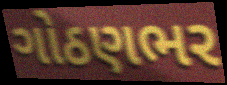
ગોઠણભર